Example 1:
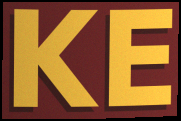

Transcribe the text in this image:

KE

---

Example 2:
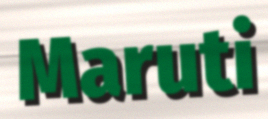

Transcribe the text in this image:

Maruti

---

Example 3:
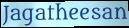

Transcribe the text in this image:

Jagatheesan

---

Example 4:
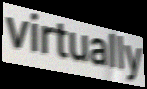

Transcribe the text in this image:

virtually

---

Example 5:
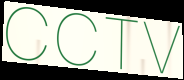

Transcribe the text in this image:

CCTV